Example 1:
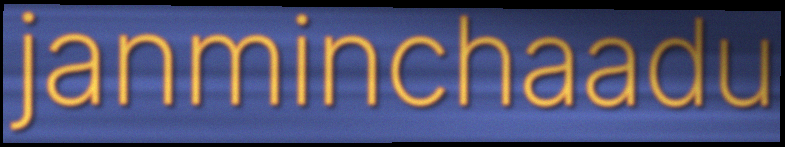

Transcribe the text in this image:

janminchaadu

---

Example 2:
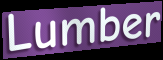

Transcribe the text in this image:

Lumber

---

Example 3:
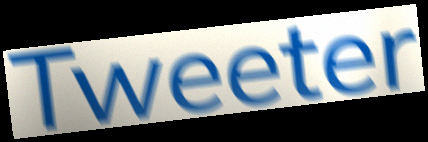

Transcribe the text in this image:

Tweeter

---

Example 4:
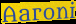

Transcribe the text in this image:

Aaroni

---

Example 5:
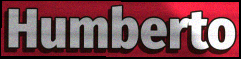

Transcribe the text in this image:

Humberto